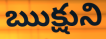
ఋక్షుని